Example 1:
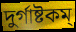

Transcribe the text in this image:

দুর্গাষ্টকম্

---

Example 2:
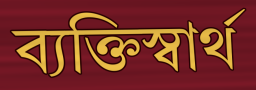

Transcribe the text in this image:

ব্যক্তিস্বার্থ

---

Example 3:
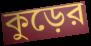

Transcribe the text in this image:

কুড়ের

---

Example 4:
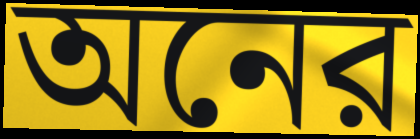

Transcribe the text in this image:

অনের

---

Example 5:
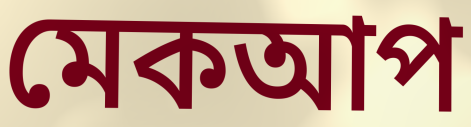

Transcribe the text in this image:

মেকআপ